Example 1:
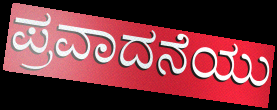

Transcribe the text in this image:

ಪ್ರವಾದನೆಯು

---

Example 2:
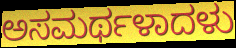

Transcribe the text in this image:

ಅಸಮರ್ಥಳಾದಳು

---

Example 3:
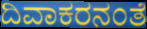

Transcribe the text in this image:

ದಿವಾಕರನಂತೆ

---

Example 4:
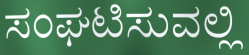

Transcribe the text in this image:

ಸಂಘಟಿಸುವಲ್ಲಿ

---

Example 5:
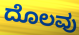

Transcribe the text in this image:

ದೊಲವು